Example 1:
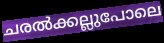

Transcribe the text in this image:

ചരൽക്കല്ലുപോലെ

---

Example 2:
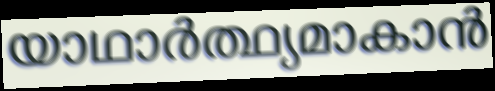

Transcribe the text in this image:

യാഥാർത്ഥ്യമാകാൻ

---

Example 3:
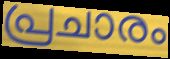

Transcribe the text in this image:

പ്രചാരം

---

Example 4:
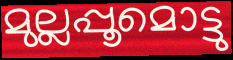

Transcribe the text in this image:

മുല്ലപ്പൂമൊട്ടു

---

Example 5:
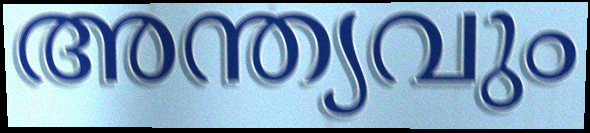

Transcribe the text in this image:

അന്ത്യവും